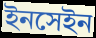
ইনসেইন